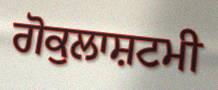
ਗੋਕੁਲਾਸ਼ਟਮੀ